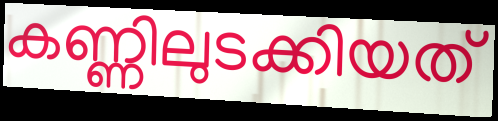
കണ്ണിലുടക്കിയത്